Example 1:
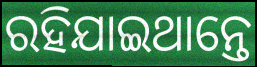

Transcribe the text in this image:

ରହିଯାଇଥାନ୍ତେ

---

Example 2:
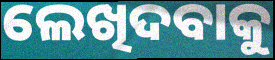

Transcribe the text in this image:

ଲେଖିଦବାକୁ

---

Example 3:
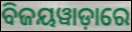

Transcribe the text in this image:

ବିଜୟୱାଡ଼ାରେ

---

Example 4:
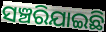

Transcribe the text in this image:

ସଞ୍ଚରିଯାଇଛି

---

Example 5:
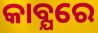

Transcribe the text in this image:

କାବ୍ଯରେ